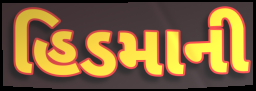
હિડમાની